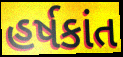
હર્ષકાંત